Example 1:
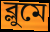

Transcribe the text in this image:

ব্লুমে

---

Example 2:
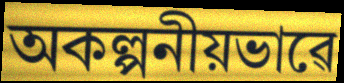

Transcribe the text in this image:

অকল্পনীয়ভাৱে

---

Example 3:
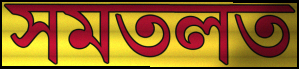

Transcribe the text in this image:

সমতলত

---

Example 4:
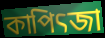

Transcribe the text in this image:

কাপিৎজা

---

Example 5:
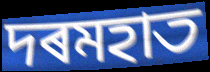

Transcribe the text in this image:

দৰমহাত